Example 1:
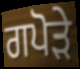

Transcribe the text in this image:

ਗਪੋੜੇ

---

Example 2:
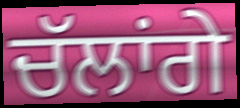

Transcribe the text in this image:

ਚੱਲਾਂਗੇ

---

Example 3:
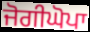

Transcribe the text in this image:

ਜੋਗੀਘੋਪਾ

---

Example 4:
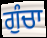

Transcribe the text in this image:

ਗੁੰਚਾ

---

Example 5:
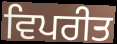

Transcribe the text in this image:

ਵਿਪਰੀਤ